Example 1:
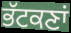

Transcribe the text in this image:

ਭੱਟਕਣਾਂ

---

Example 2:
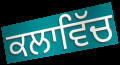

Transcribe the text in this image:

ਕਲਾਵਿੱਚ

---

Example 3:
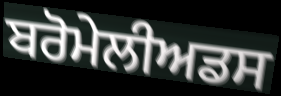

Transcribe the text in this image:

ਬਰੋਮੇਲੀਅਡਸ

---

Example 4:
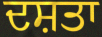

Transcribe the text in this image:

ਦਸ਼ਤਾ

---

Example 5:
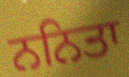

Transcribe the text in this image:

ਨਨਿਤਾ